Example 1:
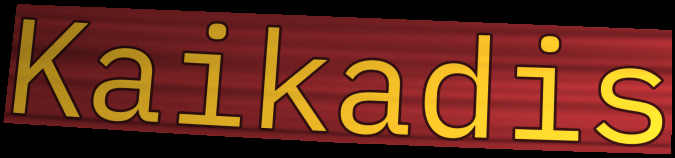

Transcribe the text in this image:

Kaikadis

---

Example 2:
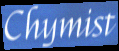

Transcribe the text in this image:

Chymist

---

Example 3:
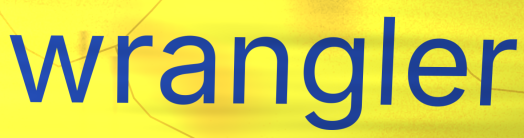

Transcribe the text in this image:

wrangler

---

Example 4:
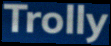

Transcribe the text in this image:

Trolly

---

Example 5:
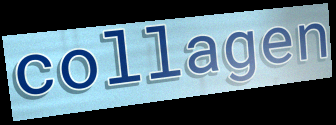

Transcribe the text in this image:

collagen